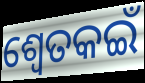
ଶ୍ୱେତକଇଁ